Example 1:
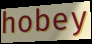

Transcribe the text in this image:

hobey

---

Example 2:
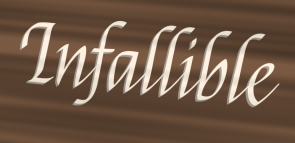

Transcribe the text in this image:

Infallible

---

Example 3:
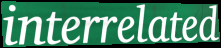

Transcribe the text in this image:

interrelated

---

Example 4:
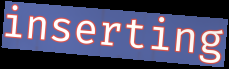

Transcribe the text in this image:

inserting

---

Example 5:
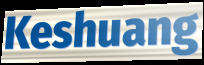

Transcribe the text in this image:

Keshuang